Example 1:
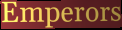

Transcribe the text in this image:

Emperors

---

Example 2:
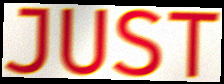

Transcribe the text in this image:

JUST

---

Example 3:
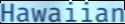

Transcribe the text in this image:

Hawaiian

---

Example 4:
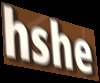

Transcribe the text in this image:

hshe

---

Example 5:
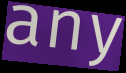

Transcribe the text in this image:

any